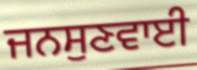
ਜਨਸੁਣਵਾਈ